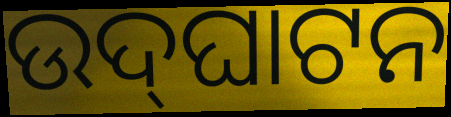
ଉଦ୍‍ଘାଟନ